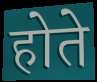
होते